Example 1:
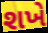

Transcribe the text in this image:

શખે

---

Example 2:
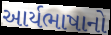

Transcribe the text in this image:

આર્યભાષાનો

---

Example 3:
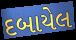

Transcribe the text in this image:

દબાયેલ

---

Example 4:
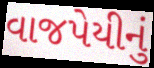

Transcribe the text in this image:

વાજપેયીનું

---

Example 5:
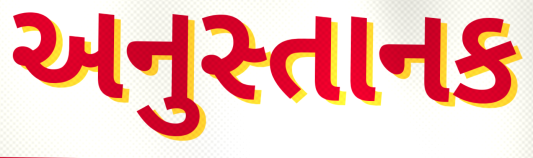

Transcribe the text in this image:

અનુસ્તાનક